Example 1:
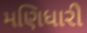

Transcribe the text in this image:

મણિધારી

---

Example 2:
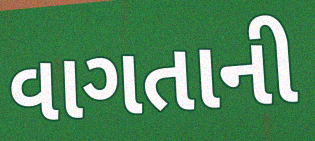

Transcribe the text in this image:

વાગતાની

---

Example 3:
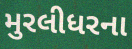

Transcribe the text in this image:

મુરલીધરના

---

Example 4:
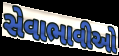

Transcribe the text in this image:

સેવાભાવીઓ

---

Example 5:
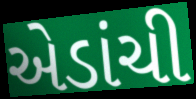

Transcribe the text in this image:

એડાંચી